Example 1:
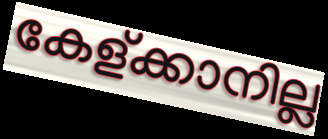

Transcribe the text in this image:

കേള്ക്കാനില്ല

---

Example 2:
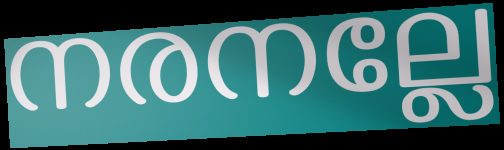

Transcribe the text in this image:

നരനല്ലേ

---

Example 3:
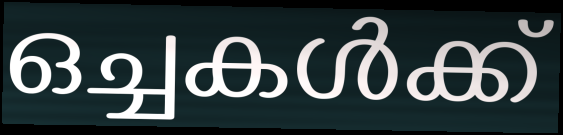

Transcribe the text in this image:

ഒച്ചകൾക്ക്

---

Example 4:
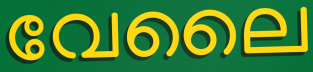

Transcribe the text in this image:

വേലൈ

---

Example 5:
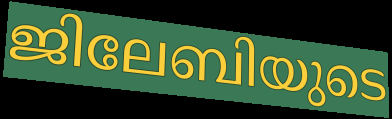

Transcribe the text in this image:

ജിലേബിയുടെ